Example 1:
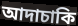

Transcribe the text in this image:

আদাচাকি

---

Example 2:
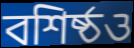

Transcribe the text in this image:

বশিষ্ঠও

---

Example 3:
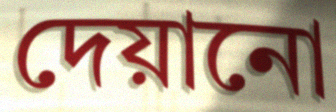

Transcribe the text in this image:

দেয়ানো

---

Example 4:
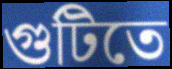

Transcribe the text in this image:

গুটিতে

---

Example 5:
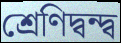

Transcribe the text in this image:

শ্রেণিদ্বন্দ্ব